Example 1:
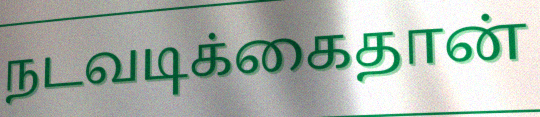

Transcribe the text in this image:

நடவடிக்கைதான்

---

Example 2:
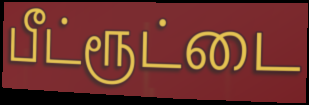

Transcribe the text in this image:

பீட்ரூட்டை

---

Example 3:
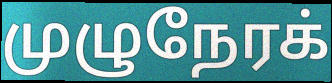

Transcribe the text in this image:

முழுநேரக்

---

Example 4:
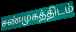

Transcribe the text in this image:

சண்முகத்திடம்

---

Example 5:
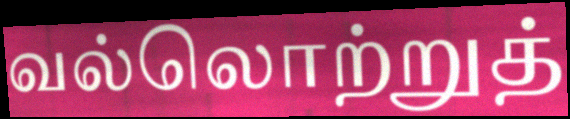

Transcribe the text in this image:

வல்லொற்றுத்